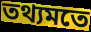
তথ্যমতে